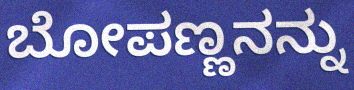
ಬೋಪಣ್ಣನನ್ನು